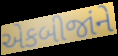
એકબીજાંને